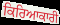
ਕਿਰਿਆਕਾਰੀ